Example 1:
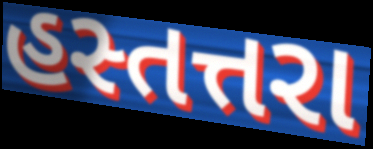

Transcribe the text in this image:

હસ્તત્તરા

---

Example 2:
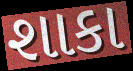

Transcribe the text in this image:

શાકા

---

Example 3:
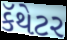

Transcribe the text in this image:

કૅથેટર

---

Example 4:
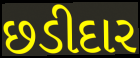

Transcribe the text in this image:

છડીદાર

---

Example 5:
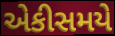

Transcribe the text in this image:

એકીસમયે